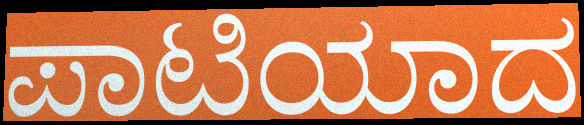
ಪಾಟಿಯಾದ